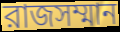
রাজসম্মান